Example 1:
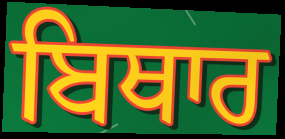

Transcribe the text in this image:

ਬਿਥਾਰ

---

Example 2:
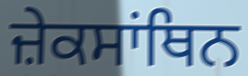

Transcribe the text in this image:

ਜ਼ੇਕਸਾਂਥਿਨ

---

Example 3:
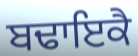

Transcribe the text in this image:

ਬਢਾਇਕੈ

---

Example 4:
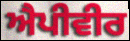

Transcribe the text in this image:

ਐਪੀਵੀਰ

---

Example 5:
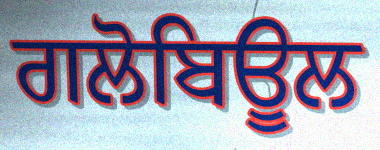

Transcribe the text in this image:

ਗਲੋਬਿਊਲ